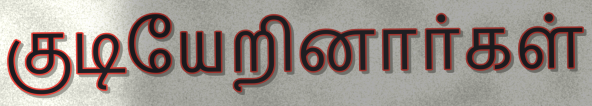
குடியேறினார்கள்